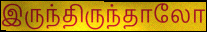
இருந்திருந்தாலோ